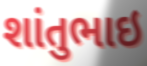
શાંતુભાઇ